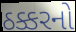
ઠક્કરનો